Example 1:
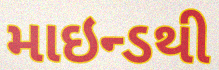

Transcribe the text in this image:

માઇન્ડથી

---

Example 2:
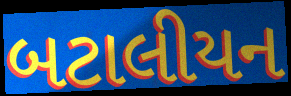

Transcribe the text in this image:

બટાલીયન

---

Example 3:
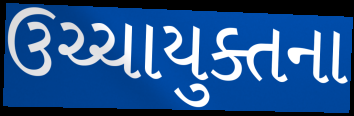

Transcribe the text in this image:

ઉચ્ચાયુક્તના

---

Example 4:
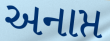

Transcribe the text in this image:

અનાપ્ત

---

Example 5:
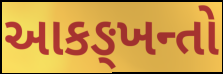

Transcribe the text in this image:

આકઙ્ખન્તો